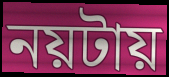
নয়টায়